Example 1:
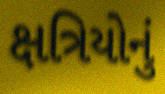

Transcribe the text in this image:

ક્ષત્રિયોનું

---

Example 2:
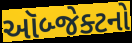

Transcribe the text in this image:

ઑબ્જેક્ટનો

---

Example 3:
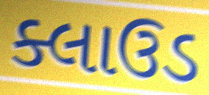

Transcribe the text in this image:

ક્લાઉડ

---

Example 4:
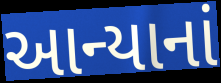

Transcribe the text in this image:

આન્યાનાં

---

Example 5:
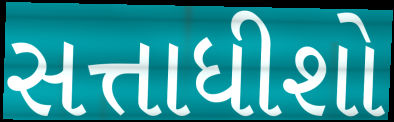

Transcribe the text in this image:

સત્તાધીશો